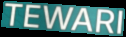
TEWARI